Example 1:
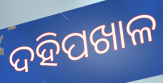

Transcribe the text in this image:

ଦହିପଖାଳ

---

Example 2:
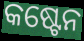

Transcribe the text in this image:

କଷ୍ଟେନ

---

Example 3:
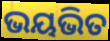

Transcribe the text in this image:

ଭୟଭିତ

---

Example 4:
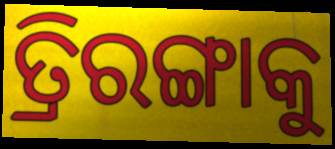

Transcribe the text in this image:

ତ୍ରିରଙ୍ଗାକୁ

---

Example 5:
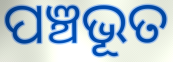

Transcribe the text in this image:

ପଞ୍ଚଭୂତ